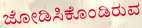
ಜೋಡಿಸಿಕೊಂಡಿರುವ